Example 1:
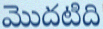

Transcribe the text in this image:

మొదటిది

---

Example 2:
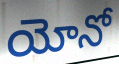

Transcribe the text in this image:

యోనో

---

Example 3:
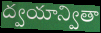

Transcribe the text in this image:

ద్వయాన్వితా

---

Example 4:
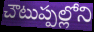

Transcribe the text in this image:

చౌటుప్పల్లోని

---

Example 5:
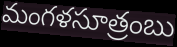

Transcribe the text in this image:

మంగళసూత్రంబు